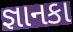
જ્ઞાનકા